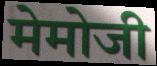
मेमोजी